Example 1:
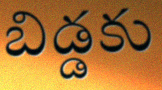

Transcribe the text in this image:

బిడ్డకు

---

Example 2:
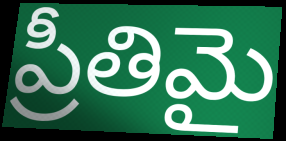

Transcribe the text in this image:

ప్రీతిమై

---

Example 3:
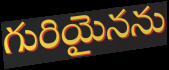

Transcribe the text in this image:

గురియైనను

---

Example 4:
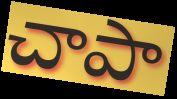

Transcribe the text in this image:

చాపా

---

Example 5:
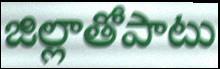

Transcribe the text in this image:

జిల్లాతోపాటు